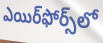
ఎయిర్‌ఫోర్స్‌లో